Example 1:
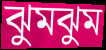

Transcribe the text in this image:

ঝুমঝুম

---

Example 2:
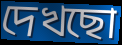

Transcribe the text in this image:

দেখছো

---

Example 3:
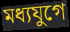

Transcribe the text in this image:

মধ্যযুগে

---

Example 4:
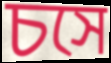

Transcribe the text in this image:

চসে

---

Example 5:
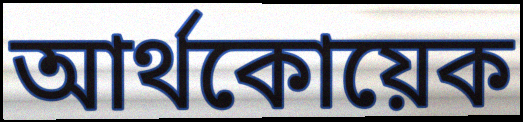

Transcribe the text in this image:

আর্থকোয়েক